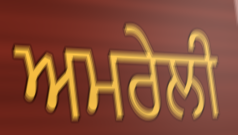
ਅਮਰੇਲੀ